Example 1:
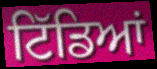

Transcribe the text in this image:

ਟਿੱਡਿਆਂ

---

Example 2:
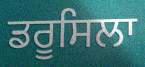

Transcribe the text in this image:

ਡਰੂਸਿਲਾ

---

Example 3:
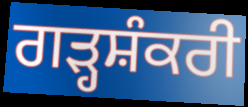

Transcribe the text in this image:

ਗੜ੍ਹਸ਼ੰਕਰੀ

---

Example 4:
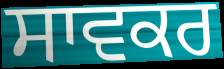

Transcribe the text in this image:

ਸਾਵਕਰ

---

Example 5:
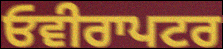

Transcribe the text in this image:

ਓਵੀਰਾਪਟਰ